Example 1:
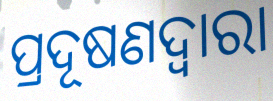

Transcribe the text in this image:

ପ୍ରଦୂଷଣଦ୍ବାରା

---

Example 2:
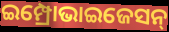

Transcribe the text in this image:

ଇମ୍ପ୍ରୋଭାଇଜେସନ୍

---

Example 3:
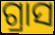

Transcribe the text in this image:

ଗ୍ରାସ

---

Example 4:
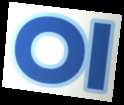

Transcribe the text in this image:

ଠା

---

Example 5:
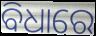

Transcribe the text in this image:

ବିଧାରେ